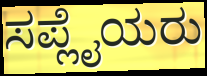
ಸಪ್ಲೈಯರು